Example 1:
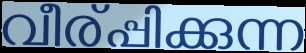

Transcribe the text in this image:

വീര്പ്പിക്കുന്ന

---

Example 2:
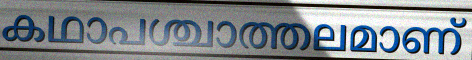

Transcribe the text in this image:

കഥാപശ്ചാത്തലമാണ്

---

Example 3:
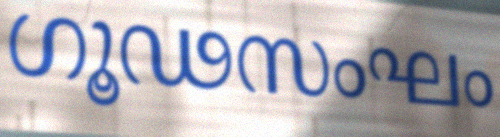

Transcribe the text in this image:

ഗൂഢസംഘം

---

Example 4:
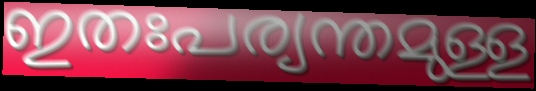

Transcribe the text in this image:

ഇതഃപര്യന്തമുള്ള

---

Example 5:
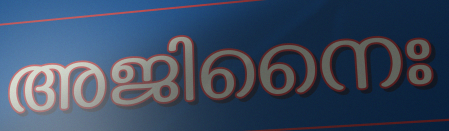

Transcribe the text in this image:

അജിനൈഃ